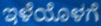
ಇಳೆಯೊಳಗೆ